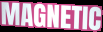
MAGNETIC